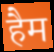
हैम